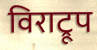
विराट्रूप